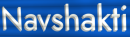
Navshakti